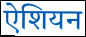
ऐशियन